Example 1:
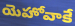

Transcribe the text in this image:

యెహోవాకే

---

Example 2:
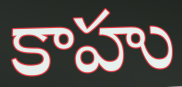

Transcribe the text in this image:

కాహు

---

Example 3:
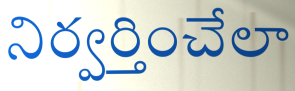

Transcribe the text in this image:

నిర్వర్తించేలా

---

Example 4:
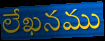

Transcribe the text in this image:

లేఖనము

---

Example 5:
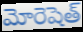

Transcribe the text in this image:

మోరెషెత్